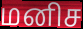
மனிச